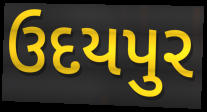
ઉદયપુર